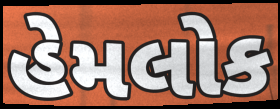
હેમલોક